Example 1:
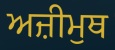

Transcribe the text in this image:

ਅਜ਼ੀਮੁਥ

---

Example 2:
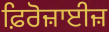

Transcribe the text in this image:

ਫ਼ਿਰੋਜ਼ਾਈਜ਼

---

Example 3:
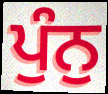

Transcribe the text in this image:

ਪੁੰਨੁ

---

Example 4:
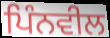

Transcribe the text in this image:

ਪਿੰਨਵੀਲ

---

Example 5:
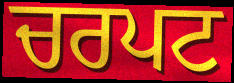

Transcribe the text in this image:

ਚਰਪਟ